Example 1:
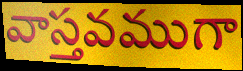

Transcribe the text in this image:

వాస్తవముగా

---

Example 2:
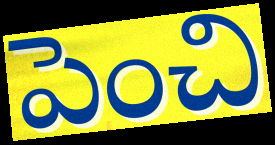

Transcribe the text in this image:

పెంచి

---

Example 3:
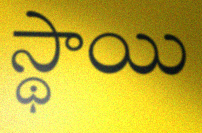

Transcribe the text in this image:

స్థాయి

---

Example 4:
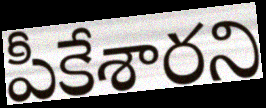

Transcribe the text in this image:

పీకేశారని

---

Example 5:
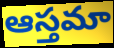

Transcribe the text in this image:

ఆస్తమా